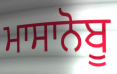
ਮਾਸਾਨੋਬੂ